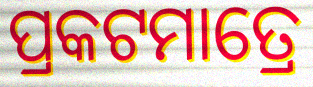
ପ୍ରକଟମାତ୍ରେ